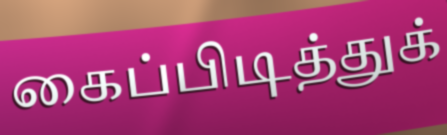
கைப்பிடித்துக்